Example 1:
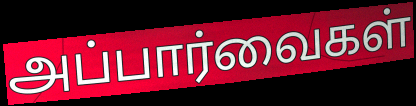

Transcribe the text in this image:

அப்பார்வைகள்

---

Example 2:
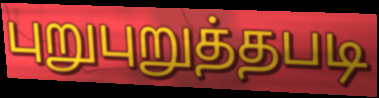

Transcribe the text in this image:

புறுபுறுத்தபடி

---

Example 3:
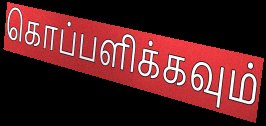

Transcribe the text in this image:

கொப்பளிக்கவும்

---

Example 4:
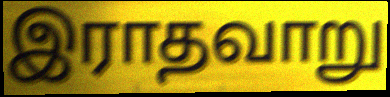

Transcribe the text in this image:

இராதவாறு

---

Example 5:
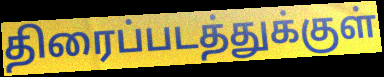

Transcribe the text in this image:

திரைப்படத்துக்குள்